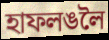
হাফলঙলৈ